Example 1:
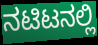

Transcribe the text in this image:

ನಟಿಟನಲ್ಲಿ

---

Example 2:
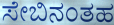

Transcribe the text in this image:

ಸೇಬಿನಂತಹ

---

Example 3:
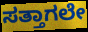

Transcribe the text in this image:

ಸತ್ತಾಗಲೇ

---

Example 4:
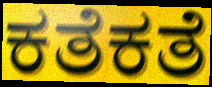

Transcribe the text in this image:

ಕತೆಕತೆ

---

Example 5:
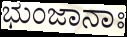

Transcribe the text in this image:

ಭುಂಜಾನಾಃ